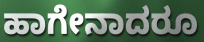
ಹಾಗೇನಾದರೂ